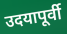
उदयापूर्वी